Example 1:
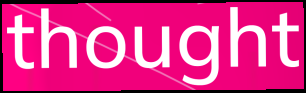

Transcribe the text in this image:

thought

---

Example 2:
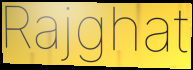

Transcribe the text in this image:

Rajghat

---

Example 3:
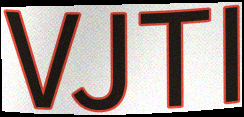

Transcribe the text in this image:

VJTI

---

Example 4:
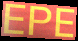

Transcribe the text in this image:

EPE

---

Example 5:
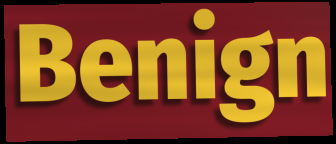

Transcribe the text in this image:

Benign